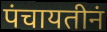
पंचायतीनं